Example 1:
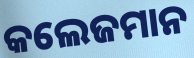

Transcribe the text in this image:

କଲେଜମାନ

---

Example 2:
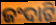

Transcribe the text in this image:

ଜଂଦାଟି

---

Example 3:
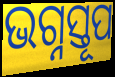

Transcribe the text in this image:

ଭଗ୍ନସ୍ତୂପ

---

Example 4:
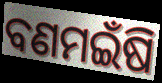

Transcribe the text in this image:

ବଣମଇଁଷି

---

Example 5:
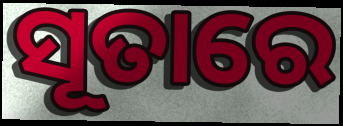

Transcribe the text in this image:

ସୂତାରେ